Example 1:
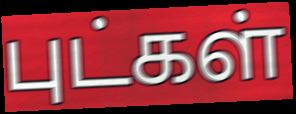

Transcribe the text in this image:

புட்கள்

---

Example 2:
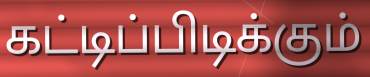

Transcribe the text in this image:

கட்டிப்பிடிக்கும்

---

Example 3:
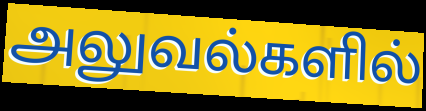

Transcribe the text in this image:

அலுவல்களில்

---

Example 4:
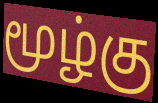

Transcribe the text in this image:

மூழ்கு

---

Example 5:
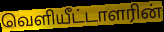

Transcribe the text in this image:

வெளியீட்டாளரின்